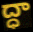
ద్ధా